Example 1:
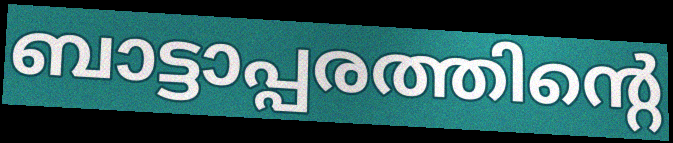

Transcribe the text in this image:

ബാട്ടാപ്പരത്തിന്റെ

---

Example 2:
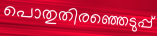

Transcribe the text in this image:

പൊതുതിരഞ്ഞെടുപ്പ്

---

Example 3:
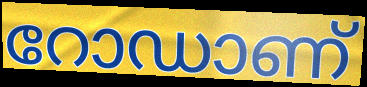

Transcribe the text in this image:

റോഡാണ്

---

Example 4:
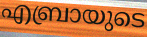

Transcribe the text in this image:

എബ്രായുടെ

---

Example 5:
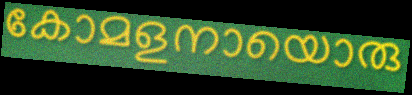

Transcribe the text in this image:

കോമളനായൊരു